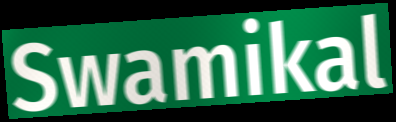
Swamikal